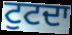
ਟੁਟਦਾ